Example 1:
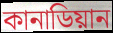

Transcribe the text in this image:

কানাডিয়ান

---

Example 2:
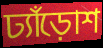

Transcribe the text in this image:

ঢ্যাঁড়োশ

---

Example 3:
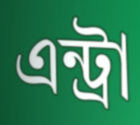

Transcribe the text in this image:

এন্ট্রা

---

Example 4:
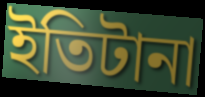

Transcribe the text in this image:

ইতিটানা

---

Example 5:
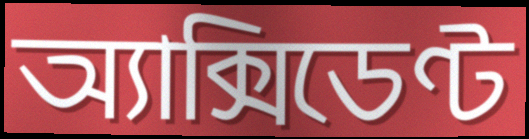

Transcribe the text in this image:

অ্যাক্সিডেণ্ট